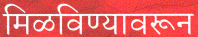
मिळविण्यावरून